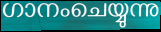
ഗാനംചെയ്യുന്നു